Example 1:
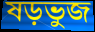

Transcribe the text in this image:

ষড়ভুজ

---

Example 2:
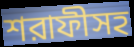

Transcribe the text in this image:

শরাফীসহ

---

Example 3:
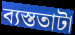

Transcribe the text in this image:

ব্যস্ততাটা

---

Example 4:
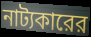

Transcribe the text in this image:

নাট্যকারের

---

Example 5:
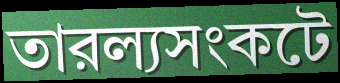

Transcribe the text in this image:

তারল্যসংকটে